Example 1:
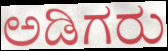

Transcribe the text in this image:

ಅಡಿಗರು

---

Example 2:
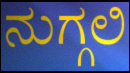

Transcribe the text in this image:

ನುಗ್ಗಲಿ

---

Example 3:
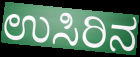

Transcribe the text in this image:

ಉಸಿರಿನ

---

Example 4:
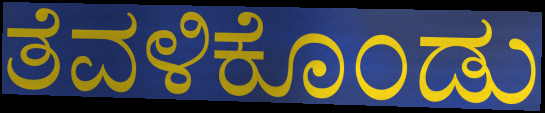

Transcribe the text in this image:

ತೆವಳಿಕೊಂಡು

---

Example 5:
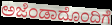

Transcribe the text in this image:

ಅಜೆಂಡಾದೊಂದಿಗೆ